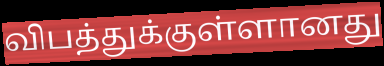
விபத்துக்குள்ளானது